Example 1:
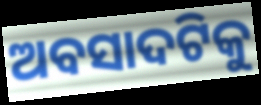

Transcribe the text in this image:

ଅବସାଦଟିକୁ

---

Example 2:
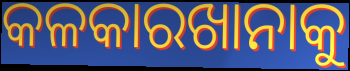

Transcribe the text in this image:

କଳକାରଖାନାକୁ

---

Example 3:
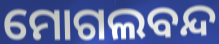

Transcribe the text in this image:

ମୋଗଲବନ୍ଦ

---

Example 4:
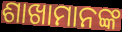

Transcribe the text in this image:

ଶାଖାମାନଙ୍କ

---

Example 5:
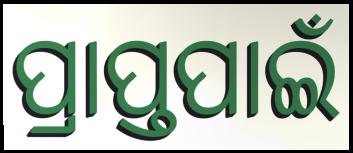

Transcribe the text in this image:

ପ୍ରାପ୍ତପାଇଁ